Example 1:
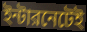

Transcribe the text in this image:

ইন্টারনেটেই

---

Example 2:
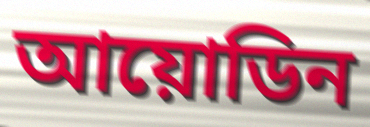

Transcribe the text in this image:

আয়োডিন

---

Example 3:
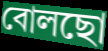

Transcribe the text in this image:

বোলছো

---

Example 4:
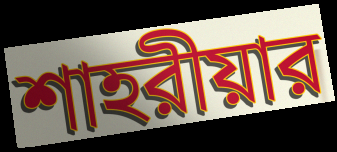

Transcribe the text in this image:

শাহরীয়ার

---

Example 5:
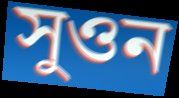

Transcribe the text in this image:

সুওন